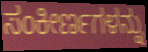
ಸಂಕೀರ್ಣಗಳನ್ನು